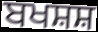
ਬਖਸ਼ਸ਼